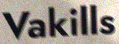
Vakills